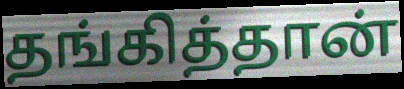
தங்கித்தான்